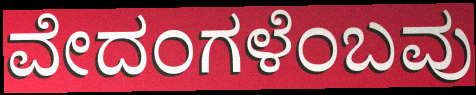
ವೇದಂಗಳೆಂಬವು